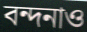
বন্দনাও